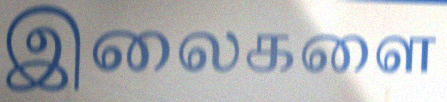
இலைகளை